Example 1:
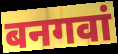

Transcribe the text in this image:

बनगवां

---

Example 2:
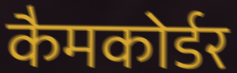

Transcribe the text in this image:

कैमकोर्डर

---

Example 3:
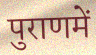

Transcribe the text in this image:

पुराणमें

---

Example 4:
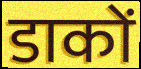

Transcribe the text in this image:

डाकों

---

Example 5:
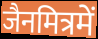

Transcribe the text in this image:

जैनमित्रमें